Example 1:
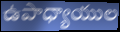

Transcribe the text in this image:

ఉపాధ్యాయుల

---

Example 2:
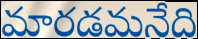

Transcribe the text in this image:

మారడమనేది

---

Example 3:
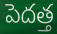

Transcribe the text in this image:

పెదత్త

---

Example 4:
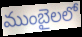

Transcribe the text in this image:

ముంబైలలో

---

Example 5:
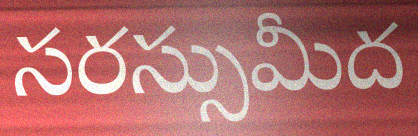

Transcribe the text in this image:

సరస్సుమీద